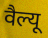
वैल्यू